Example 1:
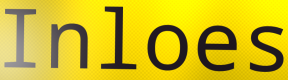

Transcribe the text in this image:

Inloes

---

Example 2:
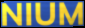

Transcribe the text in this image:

NIUM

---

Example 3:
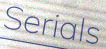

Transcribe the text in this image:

Serials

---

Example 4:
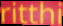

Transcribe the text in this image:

ritthi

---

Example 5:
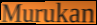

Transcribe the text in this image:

Murukan